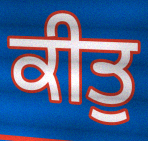
ਕੀਤੁ